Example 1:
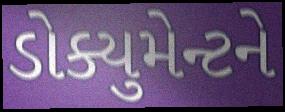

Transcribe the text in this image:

ડોક્યુમેન્ટને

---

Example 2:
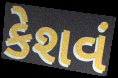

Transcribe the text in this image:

કેશવં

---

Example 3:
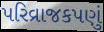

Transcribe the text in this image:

પરિવ્રાજકપણું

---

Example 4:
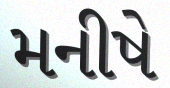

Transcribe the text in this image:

મનીષે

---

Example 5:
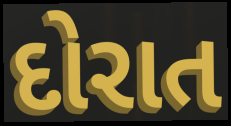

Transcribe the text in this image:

દોરાત